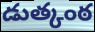
డుత్కంఠ